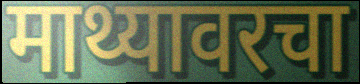
माथ्यावरचा